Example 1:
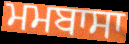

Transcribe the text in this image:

ਮਮਬਾਸਾ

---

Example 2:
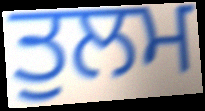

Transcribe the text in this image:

ਤੁਲਮ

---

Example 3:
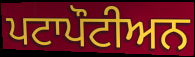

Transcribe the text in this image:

ਪਟਾਪੌਟੀਅਨ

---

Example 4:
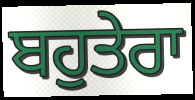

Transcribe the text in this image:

ਬਹੁਤੇਰਾ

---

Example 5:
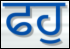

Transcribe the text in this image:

ਫਹੁ